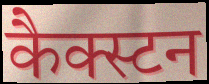
कैक्स्टन